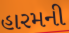
હારમની